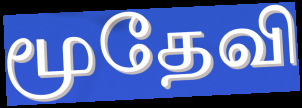
மூதேவி